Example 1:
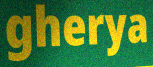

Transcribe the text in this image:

gherya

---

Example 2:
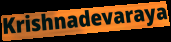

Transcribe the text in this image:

Krishnadevaraya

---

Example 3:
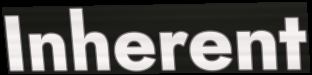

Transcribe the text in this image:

Inherent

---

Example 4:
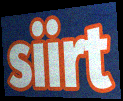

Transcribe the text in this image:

siirt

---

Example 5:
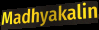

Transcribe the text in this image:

Madhyakalin